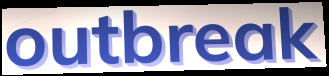
outbreak